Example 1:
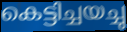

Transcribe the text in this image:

കെട്ടിച്ചയച്ചു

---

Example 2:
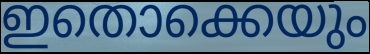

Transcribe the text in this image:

ഇതൊക്കെയും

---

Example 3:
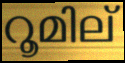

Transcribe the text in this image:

റൂമില്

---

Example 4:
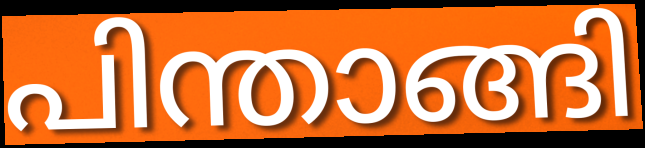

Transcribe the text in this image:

പിന്താങ്ങി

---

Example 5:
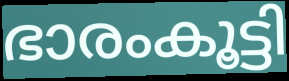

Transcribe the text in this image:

ഭാരംകൂട്ടി